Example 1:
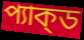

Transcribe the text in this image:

প্যাক্‌ড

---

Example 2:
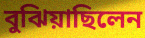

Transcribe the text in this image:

বুঝিয়াছিলেন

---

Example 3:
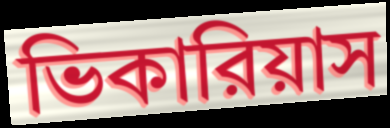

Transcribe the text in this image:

ভিকারিয়াস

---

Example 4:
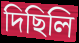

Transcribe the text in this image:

দিছিলি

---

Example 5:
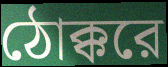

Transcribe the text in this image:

ঠোক্করে